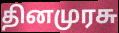
தினமுரசு